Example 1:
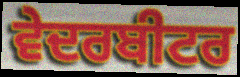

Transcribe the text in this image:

ਵੇਦਰਬੀਟਰ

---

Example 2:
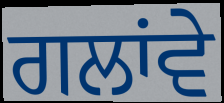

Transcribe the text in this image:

ਗਲਾਂਵੇ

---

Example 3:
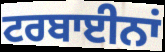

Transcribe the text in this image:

ਟਰਬਾਈਨਾਂ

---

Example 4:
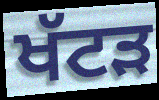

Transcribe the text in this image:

ਖੱਟੜ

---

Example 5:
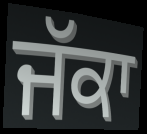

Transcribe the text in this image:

ਜੱਕਾ